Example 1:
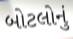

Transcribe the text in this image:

બોટલોનું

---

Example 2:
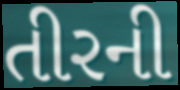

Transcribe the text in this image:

તીરની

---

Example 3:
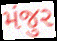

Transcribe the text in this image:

મંજુર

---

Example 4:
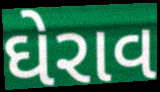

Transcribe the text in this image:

ઘેરાવ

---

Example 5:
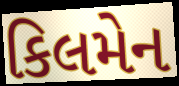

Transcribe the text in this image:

કિલમેન